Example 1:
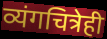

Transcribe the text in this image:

व्यंगचित्रेही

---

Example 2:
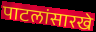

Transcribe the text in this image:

पाटलांसारखे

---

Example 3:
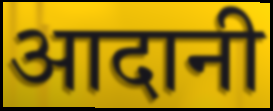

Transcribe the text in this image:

आदानी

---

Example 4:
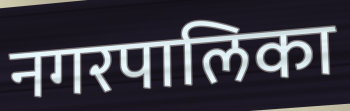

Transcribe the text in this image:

नगरपालिका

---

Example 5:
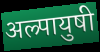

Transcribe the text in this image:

अल्पायुषी